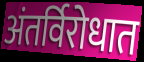
अंतर्विरोधात